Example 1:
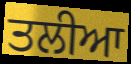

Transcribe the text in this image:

ਤਲੀਆ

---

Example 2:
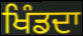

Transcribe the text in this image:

ਖਿੰਡਦਾ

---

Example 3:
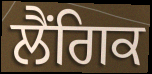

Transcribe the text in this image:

ਲੈਂਗਿਕ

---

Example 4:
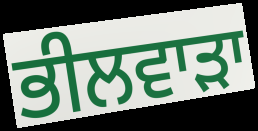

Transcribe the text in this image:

ਭੀਲਵਾੜਾ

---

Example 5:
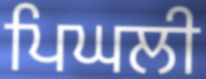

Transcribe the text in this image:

ਪਿਘਲੀ